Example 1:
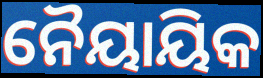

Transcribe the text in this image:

ନୈୟାୟିକ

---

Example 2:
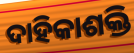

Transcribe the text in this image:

ଦାହିକାଶକ୍ତି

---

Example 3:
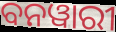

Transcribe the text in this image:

ବନୱାରୀ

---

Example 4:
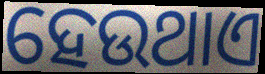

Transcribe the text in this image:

ହେଉଥାଏ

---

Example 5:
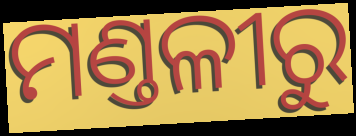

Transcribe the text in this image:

ମଣ୍ତଳୀରୁ